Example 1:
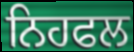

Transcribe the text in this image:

ਨਿਹਫਲ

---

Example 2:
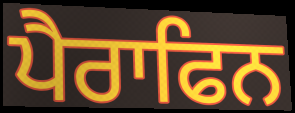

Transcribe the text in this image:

ਪੈਰਾਫਿਨ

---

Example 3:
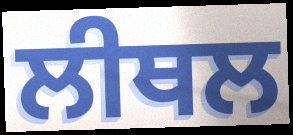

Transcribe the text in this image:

ਲੀਥਲ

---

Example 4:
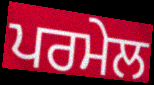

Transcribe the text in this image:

ਪਰਮੇਲ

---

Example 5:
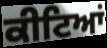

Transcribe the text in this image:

ਕੀਟਿਆਂ